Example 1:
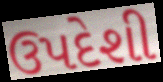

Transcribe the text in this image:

ઉપદેશી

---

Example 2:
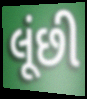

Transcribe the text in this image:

લૂંછી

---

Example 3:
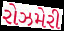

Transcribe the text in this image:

રોઝમેરી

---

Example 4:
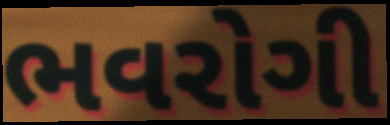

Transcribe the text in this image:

ભવરોગી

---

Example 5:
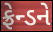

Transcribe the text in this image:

ફ્રેન્ડને